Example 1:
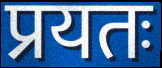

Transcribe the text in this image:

प्रयतः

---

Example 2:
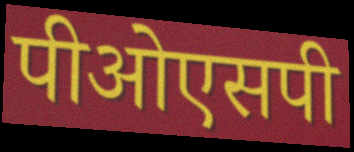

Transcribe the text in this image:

पीओएसपी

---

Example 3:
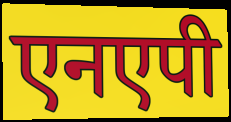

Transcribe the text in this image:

एनएपी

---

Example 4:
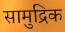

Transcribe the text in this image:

सामुद्रिक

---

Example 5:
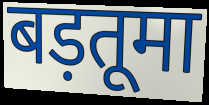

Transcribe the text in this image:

बड़तूमा